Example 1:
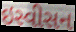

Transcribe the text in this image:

ઇસ્વીસન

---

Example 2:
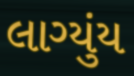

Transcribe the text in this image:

લાગ્યુંય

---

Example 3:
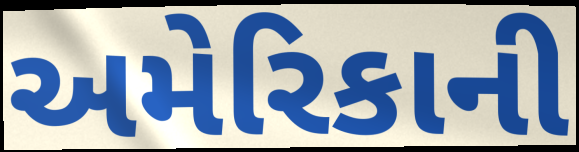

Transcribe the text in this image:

અમેરિકાની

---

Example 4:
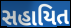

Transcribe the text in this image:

સહાયિત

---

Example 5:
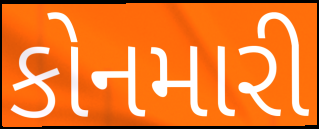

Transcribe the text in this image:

કોનમારી